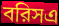
বরিসএ